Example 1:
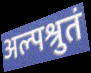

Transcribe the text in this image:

अल्पश्रुतं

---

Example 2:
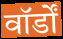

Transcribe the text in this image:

वॉर्डों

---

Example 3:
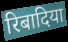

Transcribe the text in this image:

रिबादिया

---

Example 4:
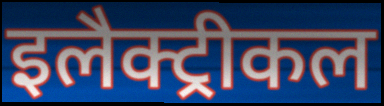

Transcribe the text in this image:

इलैक्ट्रीकल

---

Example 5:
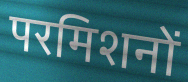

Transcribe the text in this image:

परमिशनों